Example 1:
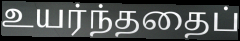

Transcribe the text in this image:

உயர்ந்ததைப்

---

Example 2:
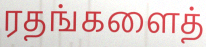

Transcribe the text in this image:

ரதங்களைத்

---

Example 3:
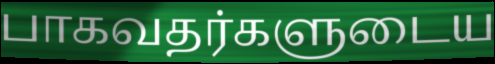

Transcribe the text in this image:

பாகவதர்களுடைய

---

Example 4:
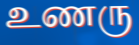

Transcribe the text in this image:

உணரு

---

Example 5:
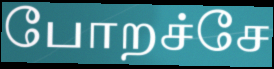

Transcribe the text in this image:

போறச்சே